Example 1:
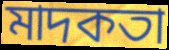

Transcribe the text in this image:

মাদকতা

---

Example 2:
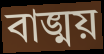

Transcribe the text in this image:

বাঙ্ময়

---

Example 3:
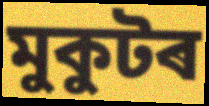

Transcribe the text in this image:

মুকুটৰ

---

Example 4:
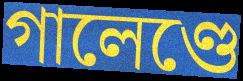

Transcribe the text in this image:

গালেণ্ডে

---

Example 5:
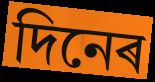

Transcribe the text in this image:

দিনেৰ